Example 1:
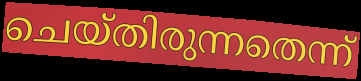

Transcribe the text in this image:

ചെയ്തിരുന്നതെന്ന്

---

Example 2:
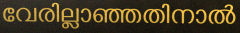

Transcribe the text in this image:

വേരില്ലാഞ്ഞതിനാൽ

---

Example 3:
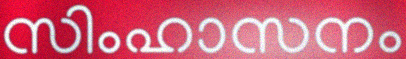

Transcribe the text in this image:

സിംഹാസനം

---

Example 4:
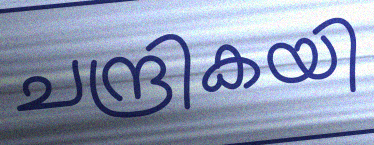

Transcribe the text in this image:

ചന്ദ്രികയി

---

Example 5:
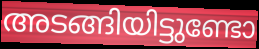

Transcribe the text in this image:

അടങ്ങിയിട്ടുണ്ടോ